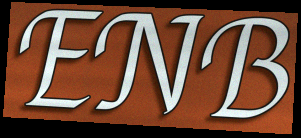
ENB